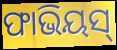
ଫାଭିୟସ୍